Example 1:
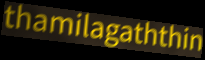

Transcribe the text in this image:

thamilagaththin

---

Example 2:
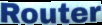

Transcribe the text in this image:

Router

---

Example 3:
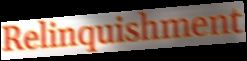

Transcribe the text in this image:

Relinquishment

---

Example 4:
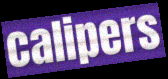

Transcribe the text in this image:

calipers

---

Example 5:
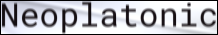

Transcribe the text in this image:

Neoplatonic